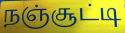
நஞ்சூட்டி